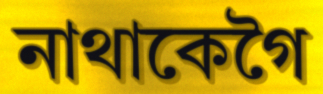
নাথাকেগৈ